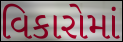
વિકારોમાં